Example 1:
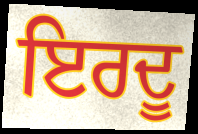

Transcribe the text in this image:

ਇਰਦੂ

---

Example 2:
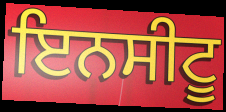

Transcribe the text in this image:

ਇਨਸੀਟੂ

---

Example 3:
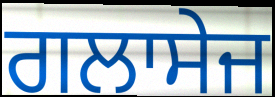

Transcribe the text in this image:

ਗਲਾਸੇਜ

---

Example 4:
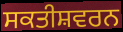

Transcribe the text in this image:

ਸਕਤੀਸ਼ਵਰਨ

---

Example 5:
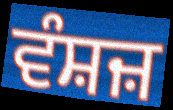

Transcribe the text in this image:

ਵੰਸ਼ਜ਼